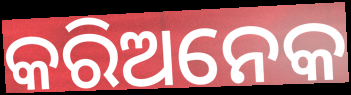
କରିଅନେକ